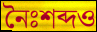
নৈঃশব্দও